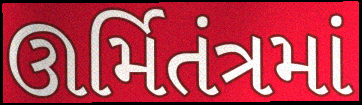
ઊર્મિતંત્રમાં